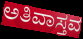
ಅತಿವಾಸ್ತವ